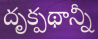
దృక్పథాన్నీ